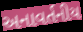
અનાવર્તનીય